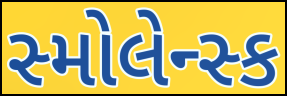
સ્મોલેન્સ્ક